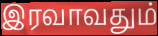
இரவாவதும்